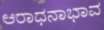
ಆರಾಧನಾಭಾವ